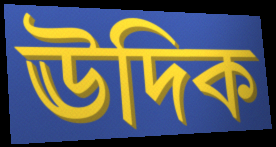
ঊদিক